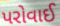
પરોવાઈ